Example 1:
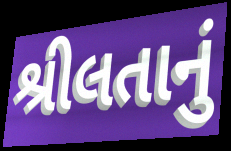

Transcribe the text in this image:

શ્રીલતાનું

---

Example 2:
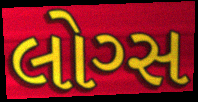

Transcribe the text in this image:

લોગ્સ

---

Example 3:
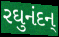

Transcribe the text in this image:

રઘુનંદન્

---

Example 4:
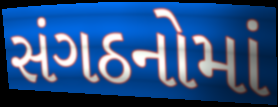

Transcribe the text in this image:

સંગઠનોમાં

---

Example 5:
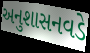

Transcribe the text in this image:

અનુશાસનવડે